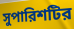
সুপারিশটির